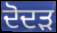
ਦੋਦੜ